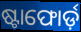
ଷ୍ଟାଫୋର୍ଡ଼